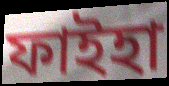
ফাইহা